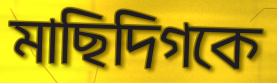
মাছিদিগকে